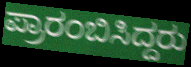
ಪ್ರಾರಂಬಿಸಿದ್ದರು